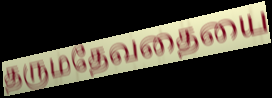
தருமதேவதையை